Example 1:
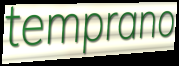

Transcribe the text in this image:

temprano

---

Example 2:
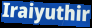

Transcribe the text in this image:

Iraiyuthir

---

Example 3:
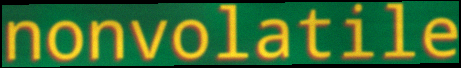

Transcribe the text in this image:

nonvolatile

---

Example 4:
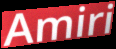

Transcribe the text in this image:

Amiri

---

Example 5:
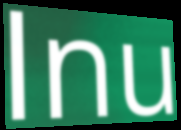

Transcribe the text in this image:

Inu